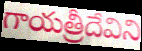
గాయత్రీదేవిని